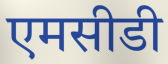
एमसीडी